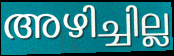
അഴിച്ചില്ല